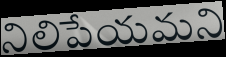
నిలిపేయమని